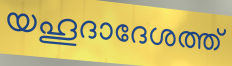
യഹൂദാദേശത്ത്